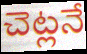
చెట్లనే